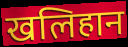
खलिहान